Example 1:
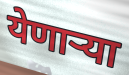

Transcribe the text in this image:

येणार्‍या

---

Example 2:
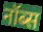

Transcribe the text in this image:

नॉब्स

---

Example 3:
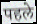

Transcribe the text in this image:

पहले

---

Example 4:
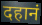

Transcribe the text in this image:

दहानं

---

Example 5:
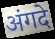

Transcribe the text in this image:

अंगदे